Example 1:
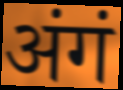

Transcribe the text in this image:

अंगं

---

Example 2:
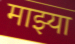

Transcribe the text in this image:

माझ्या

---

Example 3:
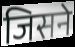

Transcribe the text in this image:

जिसने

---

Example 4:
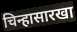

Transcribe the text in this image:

चिन्हासारखा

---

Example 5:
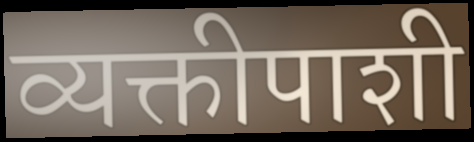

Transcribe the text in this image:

व्यक्तीपाशी